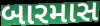
બારમાસ